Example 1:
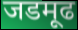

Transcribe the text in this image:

जडमूढ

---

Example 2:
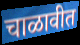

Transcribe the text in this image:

चाळावीत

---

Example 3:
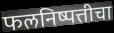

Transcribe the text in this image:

फलनिष्पत्तीचा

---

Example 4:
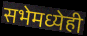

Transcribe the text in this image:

सभेमध्येही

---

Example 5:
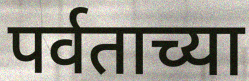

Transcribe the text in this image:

पर्वताच्या